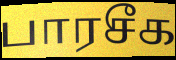
பாரசீக